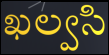
ఖల్వసి